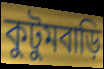
কুটুমবাড়ি